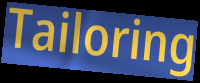
Tailoring